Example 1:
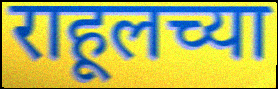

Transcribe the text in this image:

राहूलच्या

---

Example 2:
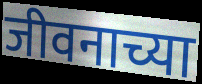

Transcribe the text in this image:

जीवनाच्या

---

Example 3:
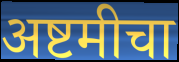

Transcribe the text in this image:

अष्टमीचा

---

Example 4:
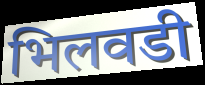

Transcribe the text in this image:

भिलवडी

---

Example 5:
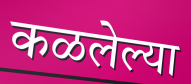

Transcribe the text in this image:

कळलेल्या